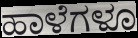
ಹಾಳೆಗಳೂ